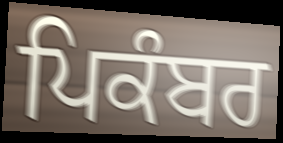
ਪਿਕੰਬਰ